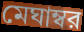
মেঘাম্বর